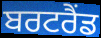
ਬਰਟਰੈਂਡ